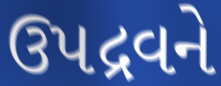
ઉપદ્રવને